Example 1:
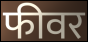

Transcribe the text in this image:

फीवर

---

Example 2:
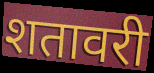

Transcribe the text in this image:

शतावरी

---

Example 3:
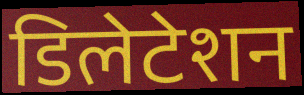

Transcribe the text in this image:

डिलेटेशन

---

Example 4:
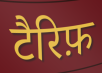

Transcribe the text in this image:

टैरिफ़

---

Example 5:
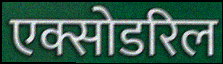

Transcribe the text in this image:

एक्सोडरिल